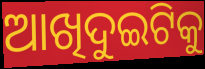
ଆଖିଦୁଇଟିକୁ